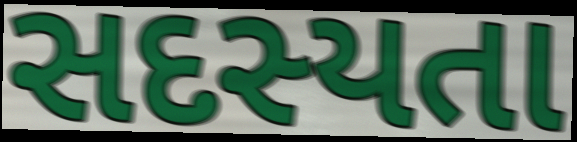
સદસ્યતા